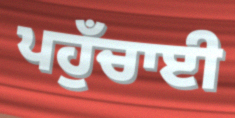
ਪਹੁਁਚਾਈ